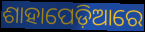
ଶାହାପେଡ଼ିଆରେ